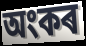
অংকৰ